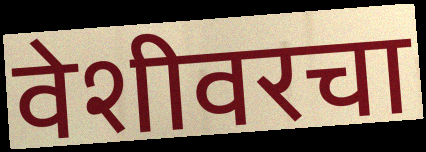
वेशीवरचा